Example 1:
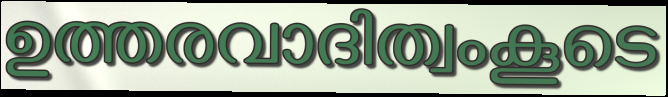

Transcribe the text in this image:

ഉത്തരവാദിത്വംകൂടെ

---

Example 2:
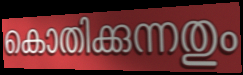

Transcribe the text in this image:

കൊതിക്കുന്നതും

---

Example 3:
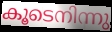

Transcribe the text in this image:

കൂടെനിന്നു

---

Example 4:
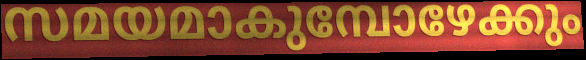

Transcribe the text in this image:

സമയമാകുമ്പോഴേക്കും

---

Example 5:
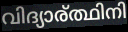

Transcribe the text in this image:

വിദ്യാര്ത്ഥിനി